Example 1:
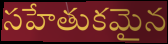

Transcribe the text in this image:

సహేతుకమైన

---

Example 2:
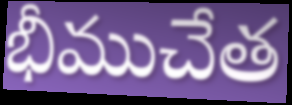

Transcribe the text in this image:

భీముచేత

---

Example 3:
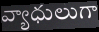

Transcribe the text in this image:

వ్యాధులుగా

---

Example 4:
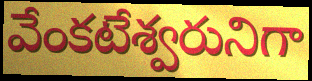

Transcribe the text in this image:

వేంకటేశ్వరునిగా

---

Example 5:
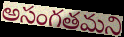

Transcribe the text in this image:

అసంగతమని